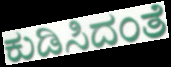
ಕುಡಿಸಿದಂತೆ